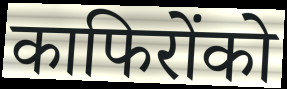
काफिरोंको